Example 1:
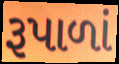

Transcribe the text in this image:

રૂપાળાં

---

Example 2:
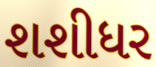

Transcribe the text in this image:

શશીધર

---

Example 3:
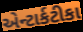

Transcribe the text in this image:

એન્ટાર્કટીકા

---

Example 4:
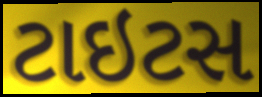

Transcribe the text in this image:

ટાઇટસ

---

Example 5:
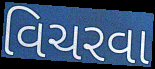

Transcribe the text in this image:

વિચરવા